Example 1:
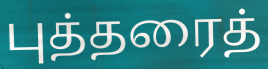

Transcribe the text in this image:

புத்தரைத்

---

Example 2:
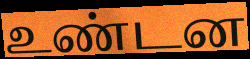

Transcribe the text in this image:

உண்டன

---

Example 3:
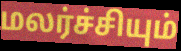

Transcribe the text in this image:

மலர்ச்சியும்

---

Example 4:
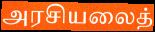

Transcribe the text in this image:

அரசியலைத்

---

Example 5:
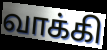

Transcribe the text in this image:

வாக்கி